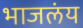
भाजलंय